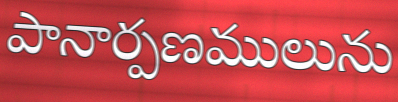
పానార్పణములును